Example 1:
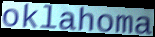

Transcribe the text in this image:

oklahoma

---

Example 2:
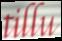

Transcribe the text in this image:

tillu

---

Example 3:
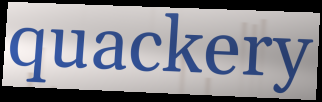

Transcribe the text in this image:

quackery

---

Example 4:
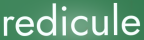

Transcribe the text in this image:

redicule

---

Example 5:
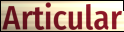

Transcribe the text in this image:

Articular